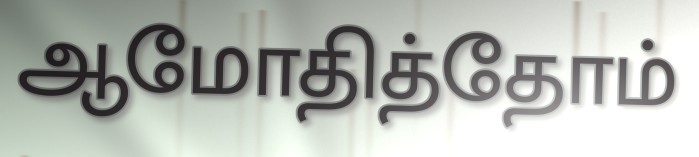
ஆமோதித்தோம்